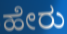
ಹೇರು